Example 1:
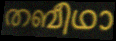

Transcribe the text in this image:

തബീഥാ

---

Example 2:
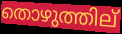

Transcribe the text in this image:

തൊഴുത്തില്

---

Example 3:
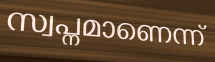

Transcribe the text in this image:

സ്വപ്നമാണെന്ന്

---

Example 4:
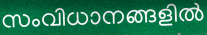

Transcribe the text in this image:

സംവിധാനങ്ങളിൽ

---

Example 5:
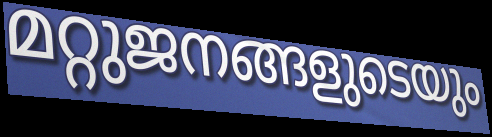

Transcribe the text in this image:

മറ്റുജനങ്ങളുടെയും